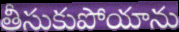
తీసుకుపోయాను